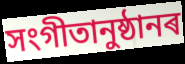
সংগীতানুষ্ঠানৰ